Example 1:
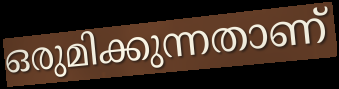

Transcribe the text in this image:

ഒരുമിക്കുന്നതാണ്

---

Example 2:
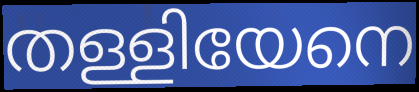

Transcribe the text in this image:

തള്ളിയേനെ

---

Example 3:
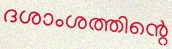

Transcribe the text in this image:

ദശാംശത്തിന്റെ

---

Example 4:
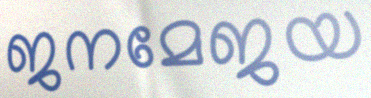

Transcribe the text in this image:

ജനമേജയ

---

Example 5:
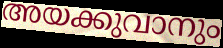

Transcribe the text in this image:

അയക്കുവാനും